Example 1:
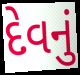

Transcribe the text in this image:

દેવનું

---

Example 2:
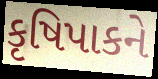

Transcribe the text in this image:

કૃષિપાકને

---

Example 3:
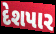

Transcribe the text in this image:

દેશપાર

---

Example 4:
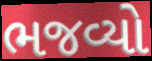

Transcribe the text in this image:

ભજવ્યો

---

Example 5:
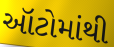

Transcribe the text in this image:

ઑટોમાંથી